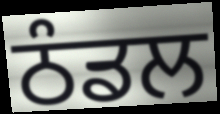
ਠੰਡਲ